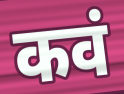
कवं